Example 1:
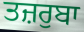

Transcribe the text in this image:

ਤਜ਼ਰੁਬਾ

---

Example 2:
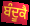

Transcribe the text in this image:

ਬੰਦੂਕੈ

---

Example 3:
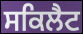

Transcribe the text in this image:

ਸਕਿਲੈਟ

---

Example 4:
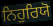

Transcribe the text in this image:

ਨਿਹੁਰਿਯੋ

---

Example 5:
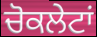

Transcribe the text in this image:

ਚੋਕਲੇਟਾਂ